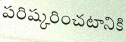
పరిష్కరించటానికి